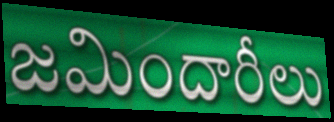
జమిందారీలు